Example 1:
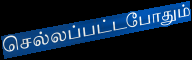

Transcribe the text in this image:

செல்லப்பட்டபோதும்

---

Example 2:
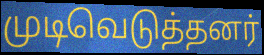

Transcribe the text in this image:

முடிவெடுத்தனர்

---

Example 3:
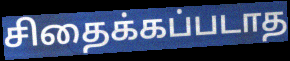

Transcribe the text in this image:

சிதைக்கப்படாத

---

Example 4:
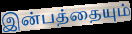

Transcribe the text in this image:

இன்பத்தையும்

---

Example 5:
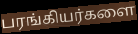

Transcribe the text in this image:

பரங்கியர்களை